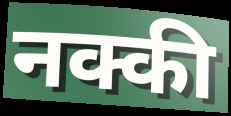
नक्की